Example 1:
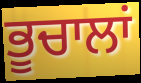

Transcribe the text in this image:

ਭੂਚਾਲਾਂ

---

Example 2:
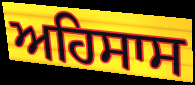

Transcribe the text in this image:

ਅਹਿਸਾਸ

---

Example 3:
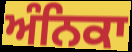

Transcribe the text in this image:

ਅੰਨਿਕਾ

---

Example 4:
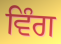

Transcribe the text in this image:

ਵਿੰਗ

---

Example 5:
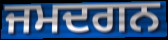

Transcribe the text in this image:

ਜਮਦਗਨ